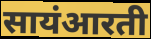
सायंआरती